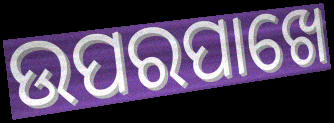
ଉପରପାଖେ